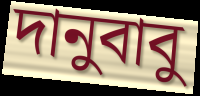
দানুবাবু